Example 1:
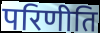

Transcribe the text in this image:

परिणीति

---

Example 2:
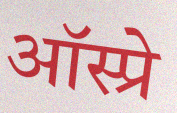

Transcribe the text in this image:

ऑस्प्रे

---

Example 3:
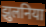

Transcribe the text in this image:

झुलनिया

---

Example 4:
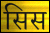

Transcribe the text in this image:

सिस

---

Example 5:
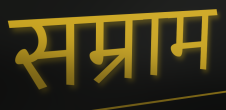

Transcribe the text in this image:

सम्राम